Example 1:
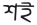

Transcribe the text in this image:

শই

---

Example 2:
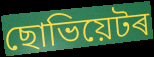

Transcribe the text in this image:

ছোভিয়েটৰ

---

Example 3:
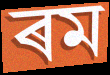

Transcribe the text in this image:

ৰম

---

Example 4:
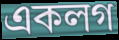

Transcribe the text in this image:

একলগ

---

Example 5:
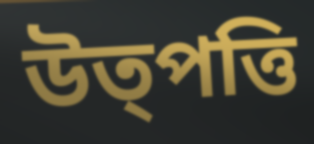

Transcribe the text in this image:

উত্পত্তি